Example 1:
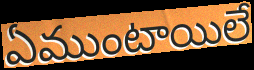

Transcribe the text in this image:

ఏముంటాయిలే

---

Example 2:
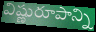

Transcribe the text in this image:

విష్ణురూపాన్ని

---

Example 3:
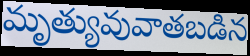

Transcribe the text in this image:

మృత్యువువాతబడిన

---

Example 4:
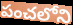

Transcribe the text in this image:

పంచలోని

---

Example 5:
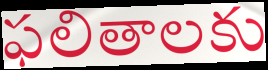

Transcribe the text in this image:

ఫలితాలకు